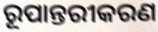
ରୂପାନ୍ତରୀକରଣ